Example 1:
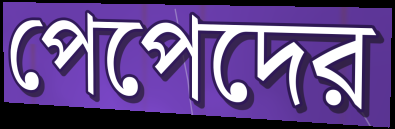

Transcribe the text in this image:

পেপেদের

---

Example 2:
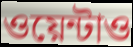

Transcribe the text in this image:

ওয়েন্টাও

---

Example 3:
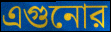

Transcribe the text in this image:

এগুনোর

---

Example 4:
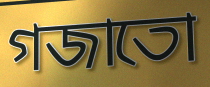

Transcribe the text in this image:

গজাতো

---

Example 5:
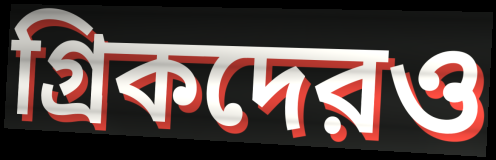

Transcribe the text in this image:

গ্রিকদেরও